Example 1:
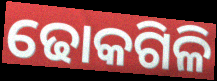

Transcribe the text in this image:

ଢୋକଗିଳି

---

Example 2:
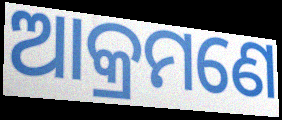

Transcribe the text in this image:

ଆକ୍ରମଣେ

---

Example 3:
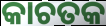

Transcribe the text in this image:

କାଚତକ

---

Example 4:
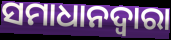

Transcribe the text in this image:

ସମାଧାନଦ୍ୱାରା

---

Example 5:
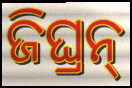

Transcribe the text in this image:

ଜିଘ୍ରନ୍